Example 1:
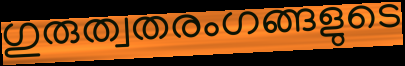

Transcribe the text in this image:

ഗുരുത്വതരംഗങ്ങളുടെ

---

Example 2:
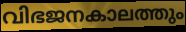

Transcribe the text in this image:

വിഭജനകാലത്തും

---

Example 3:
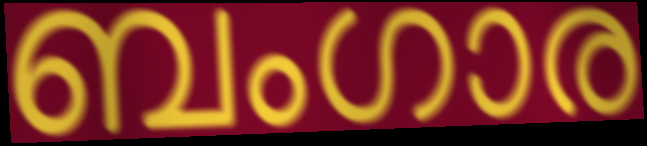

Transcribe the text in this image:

ബംഗാര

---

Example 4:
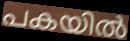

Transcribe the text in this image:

പകയിൽ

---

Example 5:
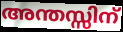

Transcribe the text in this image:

അന്തസ്സിന്